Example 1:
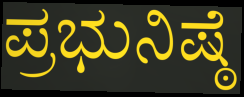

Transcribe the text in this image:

ಪ್ರಭುನಿಷ್ಠೆ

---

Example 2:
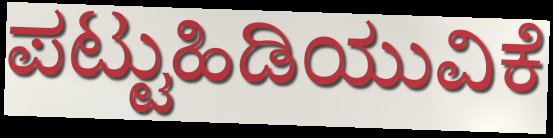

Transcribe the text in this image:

ಪಟ್ಟುಹಿಡಿಯುವಿಕೆ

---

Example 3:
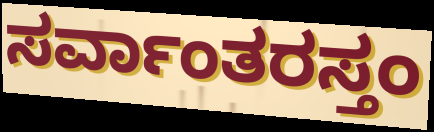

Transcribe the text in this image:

ಸರ್ವಾಂತರಸ್ತಂ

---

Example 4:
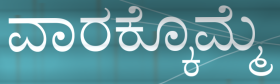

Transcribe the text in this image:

ವಾರಕ್ಕೊಮ್ಮೆ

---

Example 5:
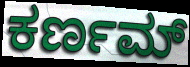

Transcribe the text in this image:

ಕರ್ಣಮ್